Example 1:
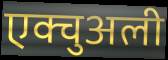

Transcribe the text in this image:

एक्चुअली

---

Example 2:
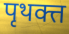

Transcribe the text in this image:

पृथक्त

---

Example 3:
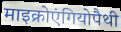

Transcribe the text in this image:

माइक्रोएंगियोपैथी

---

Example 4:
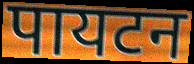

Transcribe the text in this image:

पायटन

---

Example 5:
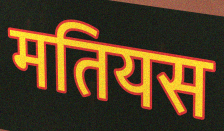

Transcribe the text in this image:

मतियस